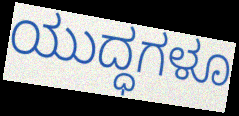
ಯುದ್ಧಗಳೂ